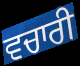
ਵਚਾਰੀ